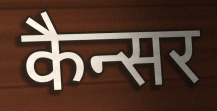
कैन्सर